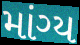
માંગ્ય